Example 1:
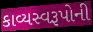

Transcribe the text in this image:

કાવ્યસ્વરૂપોની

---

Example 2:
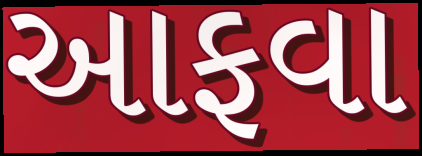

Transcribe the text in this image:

આફવા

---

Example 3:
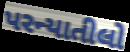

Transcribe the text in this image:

પરન્યાતીલો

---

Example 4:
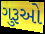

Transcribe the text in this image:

ગુરૂઓ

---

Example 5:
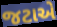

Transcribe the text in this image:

જટાએ